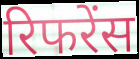
रिफरेंस